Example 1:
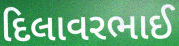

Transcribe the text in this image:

દિલાવરભાઈ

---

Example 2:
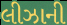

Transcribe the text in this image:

લીઝાની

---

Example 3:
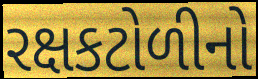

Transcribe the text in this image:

રક્ષકટોળીનો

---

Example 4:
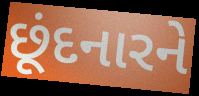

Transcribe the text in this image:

છૂંદનારને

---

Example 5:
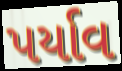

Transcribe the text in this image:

પર્યાવ